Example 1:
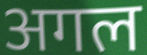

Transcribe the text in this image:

अगल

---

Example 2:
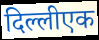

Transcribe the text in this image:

दिल्लीएक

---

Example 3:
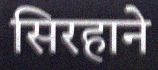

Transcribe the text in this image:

सिरहाने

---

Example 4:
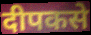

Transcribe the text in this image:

दीपकसे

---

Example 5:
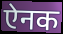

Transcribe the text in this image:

ऐनक